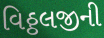
વિઠ્ઠલજીની